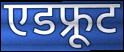
एडफ्रूट